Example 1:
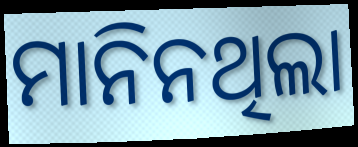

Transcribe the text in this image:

ମାନିନଥିଲା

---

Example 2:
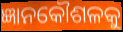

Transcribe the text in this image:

ଜ୍ଞାନକୌଶଳକୁ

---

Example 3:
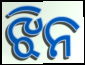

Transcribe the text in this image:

ଝିନ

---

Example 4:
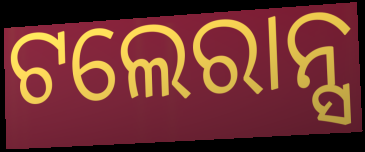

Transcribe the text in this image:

ଟଲେରାନ୍ସ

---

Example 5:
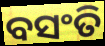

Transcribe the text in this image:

ବସଂତି